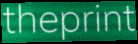
theprint